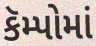
કૅમ્પોમાં